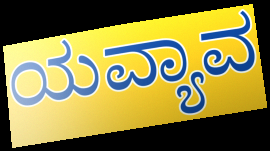
ಯವ್ಯಾವ